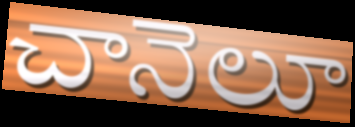
చానెలూ